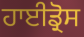
ਹਾਈਡ੍ਰੋਸ